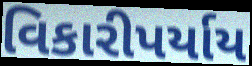
વિકારીપર્યાય